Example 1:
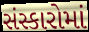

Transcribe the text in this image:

સંસ્કારોમાં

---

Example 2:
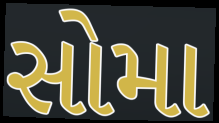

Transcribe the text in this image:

સોમા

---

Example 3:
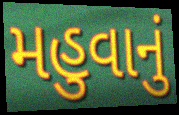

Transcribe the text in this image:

મહુવાનું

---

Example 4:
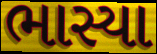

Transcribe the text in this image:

ભાસ્યા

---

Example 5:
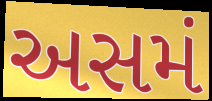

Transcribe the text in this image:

અસમં